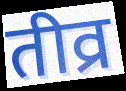
तीव्र